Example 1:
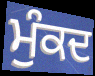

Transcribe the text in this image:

ਮੁੰਕਦ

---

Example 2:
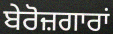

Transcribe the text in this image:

ਬੇਰੋਜ਼ਗਾਰਾਂ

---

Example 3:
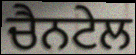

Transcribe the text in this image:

ਚੈਨਟੇਲ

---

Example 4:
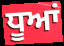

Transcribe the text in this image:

ਧੂਆਂ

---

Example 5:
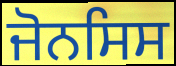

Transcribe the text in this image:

ਜੋਨਸਿਸ